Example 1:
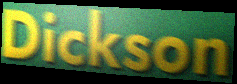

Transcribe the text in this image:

Dickson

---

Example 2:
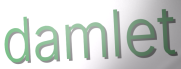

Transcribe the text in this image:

damlet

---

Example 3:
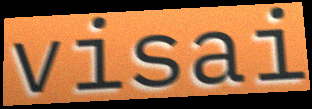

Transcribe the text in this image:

visai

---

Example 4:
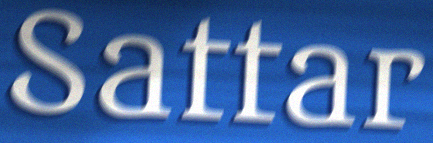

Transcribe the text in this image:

Sattar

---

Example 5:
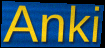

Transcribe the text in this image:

Anki